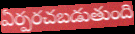
ఏర్పరచబడుతుంది